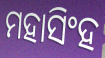
ମହାସିଂହ